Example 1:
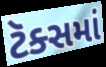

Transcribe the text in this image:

ટૅક્સમાં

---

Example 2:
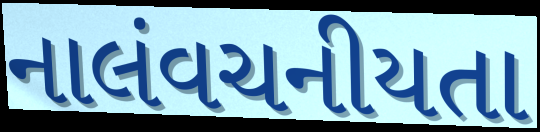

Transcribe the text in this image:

નાલંવચનીયતા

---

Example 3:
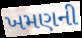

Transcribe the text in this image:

ખમણની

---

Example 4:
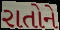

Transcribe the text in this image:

રાતોને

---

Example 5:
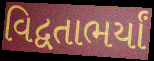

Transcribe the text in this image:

વિદ્વતાભર્યાં